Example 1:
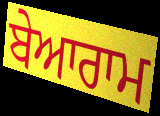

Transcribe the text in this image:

ਬੇਆਰਾਮ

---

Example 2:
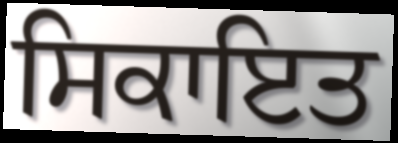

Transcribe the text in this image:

ਸਿਕਾਇਤ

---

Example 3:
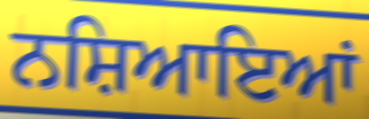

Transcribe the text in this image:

ਨਸ਼ਿਆਇਆਂ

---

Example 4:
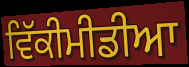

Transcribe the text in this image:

ਵਿੱਕੀਮੀਡੀਆ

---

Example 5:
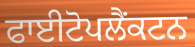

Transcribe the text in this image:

ਫਾਈਟੋਪਲੈਂਕਟਨ